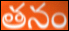
తనం